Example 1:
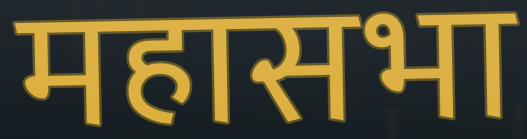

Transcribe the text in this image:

महासभा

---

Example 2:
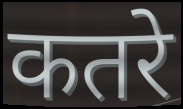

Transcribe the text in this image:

कतरे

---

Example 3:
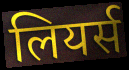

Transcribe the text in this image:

लियर्स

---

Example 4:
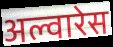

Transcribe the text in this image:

अल्वारेस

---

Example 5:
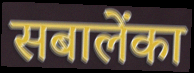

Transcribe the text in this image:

सबालेंका